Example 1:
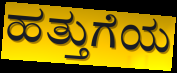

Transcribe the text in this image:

ಹತ್ತುಗೆಯ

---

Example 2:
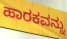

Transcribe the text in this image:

ಹಾರಕವನ್ನು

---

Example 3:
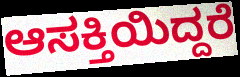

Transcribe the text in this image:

ಆಸಕ್ತಿಯಿದ್ದರೆ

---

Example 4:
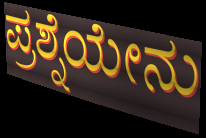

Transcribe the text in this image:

ಪ್ರಶ್ನೆಯೇನು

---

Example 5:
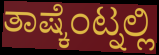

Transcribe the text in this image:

ತಾಷ್ಕೆಂಟ್ನಲ್ಲಿ